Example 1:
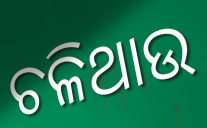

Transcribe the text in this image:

ଚଳିଥାଉ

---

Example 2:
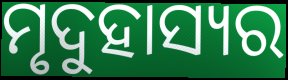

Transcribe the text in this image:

ମୃଦୁହାସ୍ୟର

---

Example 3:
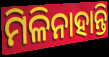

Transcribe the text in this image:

ମିଳିନାହାନ୍ତି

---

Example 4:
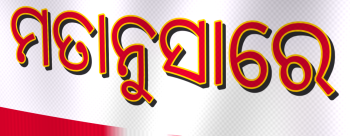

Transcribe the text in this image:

ମତାନୁସାରେ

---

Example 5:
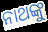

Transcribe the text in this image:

ନାଥଙ୍କୁ